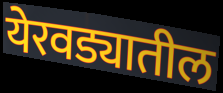
येरवड्यातील